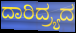
ದಾರಿದ್ರ್ಯದ